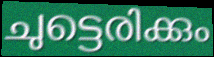
ചുട്ടെരിക്കും